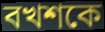
বখশকে